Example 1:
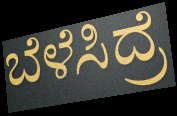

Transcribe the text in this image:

ಬೆಳೆಸಿದ್ರೆ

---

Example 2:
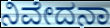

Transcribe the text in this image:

ನಿವೇದನಾ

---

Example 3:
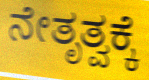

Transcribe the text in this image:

ನೇತೃತ್ವಕ್ಕೆ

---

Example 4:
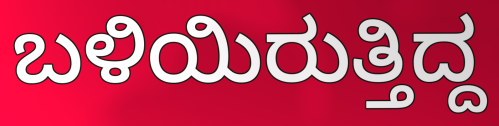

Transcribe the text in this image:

ಬಳಿಯಿರುತ್ತಿದ್ದ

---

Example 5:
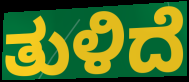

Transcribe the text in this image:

ತುಳಿದೆ